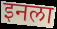
इनला